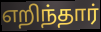
எறிந்தார்